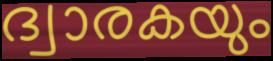
ദ്വാരകയും